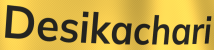
Desikachari